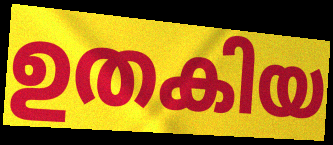
ഉതകിയ